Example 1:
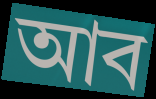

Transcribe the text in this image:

আব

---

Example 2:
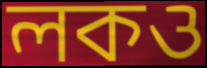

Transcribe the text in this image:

লকও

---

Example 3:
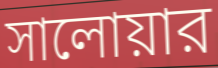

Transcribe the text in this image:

সালোয়ার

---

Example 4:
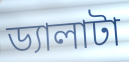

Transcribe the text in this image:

ড্যালাটা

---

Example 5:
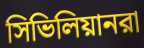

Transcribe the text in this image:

সিভিলিয়ানরা